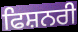
ਫਿਸ਼ਨਰੀ